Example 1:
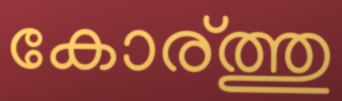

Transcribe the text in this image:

കോര്ത്തു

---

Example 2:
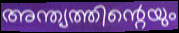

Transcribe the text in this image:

അന്ത്യത്തിന്റെയും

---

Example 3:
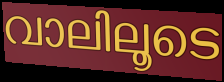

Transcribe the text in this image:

വാലിലൂടെ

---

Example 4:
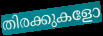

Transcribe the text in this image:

തിരക്കുകളോ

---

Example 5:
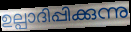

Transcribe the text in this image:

ഉല്പാദിപ്പിക്കുന്നു